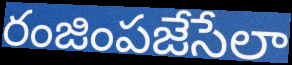
రంజింపజేసేలా